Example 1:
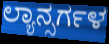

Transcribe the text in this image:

ಲ್ಯಾನ್ಸರ್ಗಳ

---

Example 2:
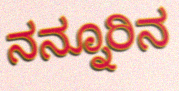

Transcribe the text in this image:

ನನ್ನೂರಿನ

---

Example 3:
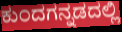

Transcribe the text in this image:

ಕುಂದಗನ್ನಡದಲ್ಲಿ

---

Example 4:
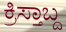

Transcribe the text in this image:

ಕ್ರಿಸ್ತಾಬ್ದ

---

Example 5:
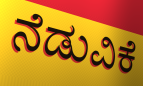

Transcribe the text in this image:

ನೆಡುವಿಕೆ